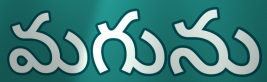
మగును